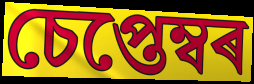
চেপ্তেম্বৰ